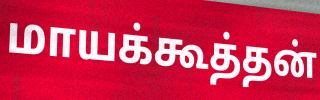
மாயக்கூத்தன்